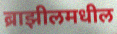
ब्राझीलमधील